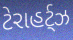
ટેરાહર્ટ્ઝ